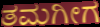
ತಮಗೀಗ